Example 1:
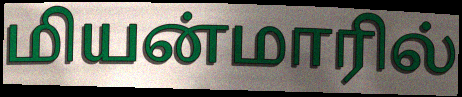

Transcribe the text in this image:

மியன்மாரில்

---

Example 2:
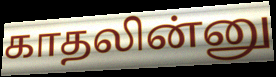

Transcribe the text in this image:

காதலின்னு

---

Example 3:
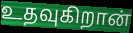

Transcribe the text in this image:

உதவுகிறான்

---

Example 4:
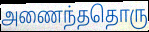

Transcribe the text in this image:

அணைந்ததொரு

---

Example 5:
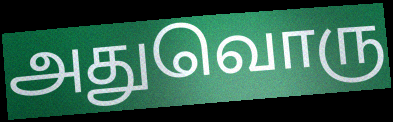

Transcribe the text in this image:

அதுவொரு